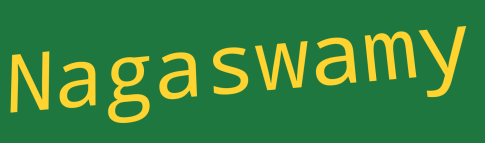
Nagaswamy